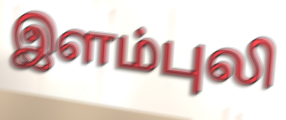
இளம்புலி